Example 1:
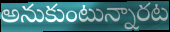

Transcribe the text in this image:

అనుకుంటున్నారట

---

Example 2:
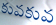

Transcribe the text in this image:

కువకువ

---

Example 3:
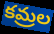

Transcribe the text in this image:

కమ్రల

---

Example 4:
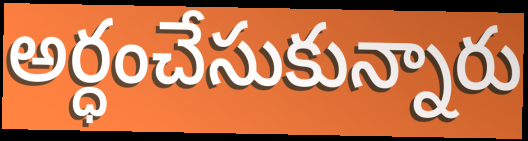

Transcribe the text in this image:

అర్ధంచేసుకున్నారు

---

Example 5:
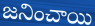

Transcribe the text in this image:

జనించాయి